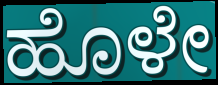
ಹೊಳೇ